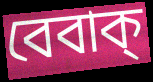
বেবাক্